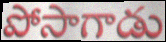
పోసాగాడు